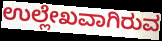
ಉಲ್ಲೇಖವಾಗಿರುವ